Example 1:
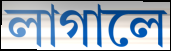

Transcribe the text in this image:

লাগালে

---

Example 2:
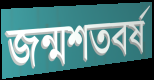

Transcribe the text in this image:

জন্মশতবর্ষ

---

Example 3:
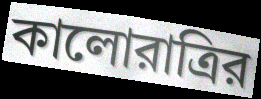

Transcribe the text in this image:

কালোরাত্রির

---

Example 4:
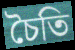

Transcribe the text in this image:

চৈতি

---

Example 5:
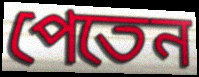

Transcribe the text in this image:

পেতেন